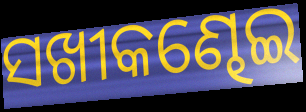
ସଖୀକଣ୍ଢେଇ